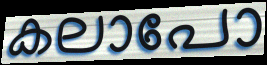
കലാപോ